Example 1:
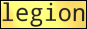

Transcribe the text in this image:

legion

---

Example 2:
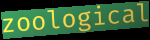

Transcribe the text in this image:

zoological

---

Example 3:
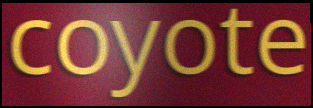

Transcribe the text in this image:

coyote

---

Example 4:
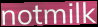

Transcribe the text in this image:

notmilk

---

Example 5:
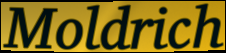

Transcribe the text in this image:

Moldrich